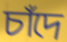
চাঁদে